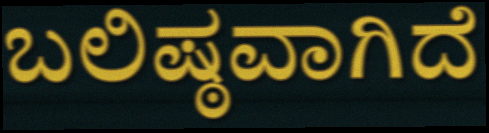
ಬಲಿಷ್ಠವಾಗಿದೆ